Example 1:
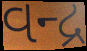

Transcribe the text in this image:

વન્દ્ર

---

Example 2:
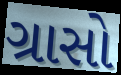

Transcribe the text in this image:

ગ્રાસો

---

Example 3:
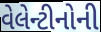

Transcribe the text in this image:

વેલેન્ટીનોની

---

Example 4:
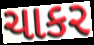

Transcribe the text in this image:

ચાકર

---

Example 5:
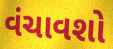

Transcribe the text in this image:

વંચાવશો